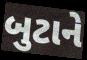
બુટાને